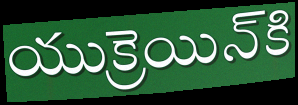
యుక్రెయిన్‌కి